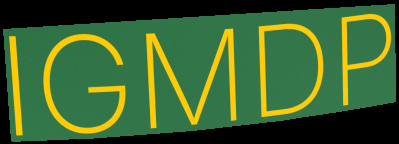
IGMDP